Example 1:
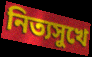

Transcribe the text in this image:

নিত্যসুখে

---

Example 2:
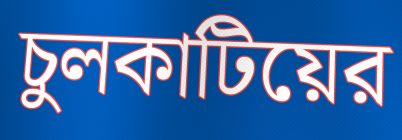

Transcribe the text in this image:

চুলকাটিয়ের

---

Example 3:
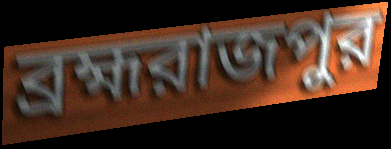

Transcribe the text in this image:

ব্রহ্মরাজপুর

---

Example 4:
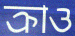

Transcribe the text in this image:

ক্রাও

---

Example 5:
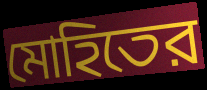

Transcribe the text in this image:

মোহিতের